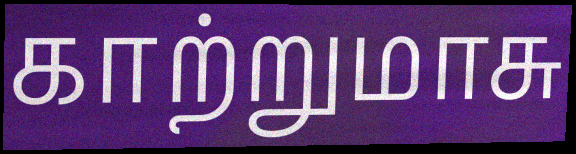
காற்றுமாசு